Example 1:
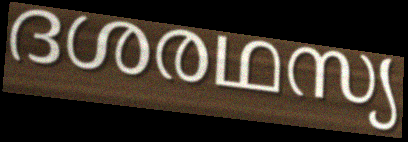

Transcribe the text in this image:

ദശരഥസ്യ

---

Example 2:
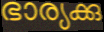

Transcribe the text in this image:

ഭാര്യക്കു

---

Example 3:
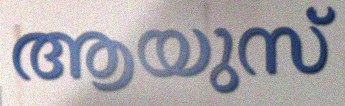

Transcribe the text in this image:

ആയുസ്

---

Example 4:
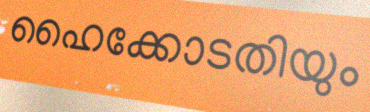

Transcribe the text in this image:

ഹൈക്കോടതിയും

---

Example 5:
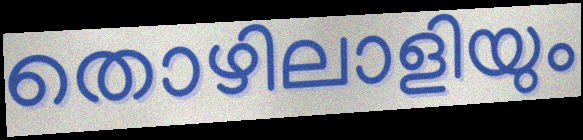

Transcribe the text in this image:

തൊഴിലാളിയും